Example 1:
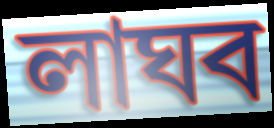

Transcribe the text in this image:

লাঘব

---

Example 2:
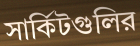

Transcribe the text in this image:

সার্কিটগুলির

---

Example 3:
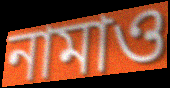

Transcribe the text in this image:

নামাও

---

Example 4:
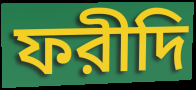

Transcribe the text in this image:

ফরীদি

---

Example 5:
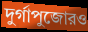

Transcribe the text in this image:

দুর্গাপুজোরও